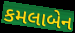
કમલાબેન